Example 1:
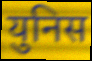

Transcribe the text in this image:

युनिस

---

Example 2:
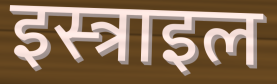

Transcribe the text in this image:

इस्त्राइल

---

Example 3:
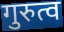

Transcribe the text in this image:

गुरुत्व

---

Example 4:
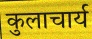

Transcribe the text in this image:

कुलाचार्य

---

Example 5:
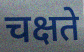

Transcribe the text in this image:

चक्षते